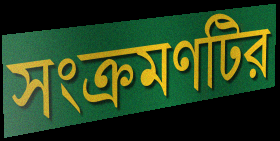
সংক্রমণটির